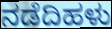
ನಡೆದಿಹಳು